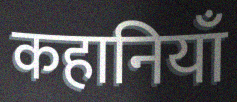
कहानियाँ